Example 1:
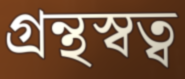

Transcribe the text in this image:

গ্রন্থস্বত্ব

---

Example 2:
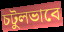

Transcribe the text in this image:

চটুলভাবে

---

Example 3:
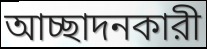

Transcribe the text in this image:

আচ্ছাদনকারী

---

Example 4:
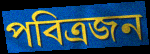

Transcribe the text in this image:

পবিত্রজন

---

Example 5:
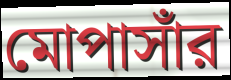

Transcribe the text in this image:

মোপাসাঁর